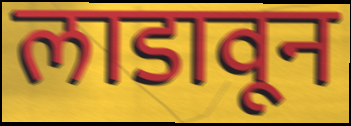
लाडावून